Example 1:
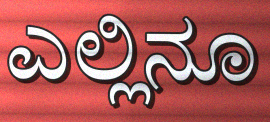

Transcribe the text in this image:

ಎಲ್ಲಿನೂ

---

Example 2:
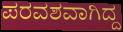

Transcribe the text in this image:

ಪರವಶವಾಗಿದ್ದ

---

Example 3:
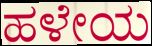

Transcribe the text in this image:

ಹಳೇಯ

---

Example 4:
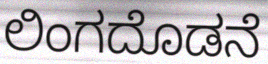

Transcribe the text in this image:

ಲಿಂಗದೊಡನೆ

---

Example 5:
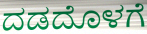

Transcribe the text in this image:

ದಡದೊಳಗೆ